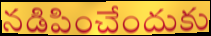
నడిపించేందుకు